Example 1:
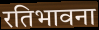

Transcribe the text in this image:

रतिभावना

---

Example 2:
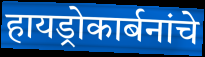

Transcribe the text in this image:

हायड्रोकार्बनांचे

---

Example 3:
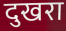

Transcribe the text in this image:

दुखरा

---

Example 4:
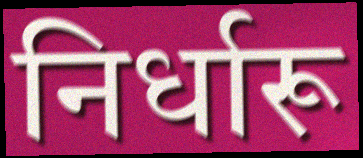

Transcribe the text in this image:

निर्धारू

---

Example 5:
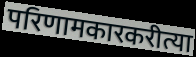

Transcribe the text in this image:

परिणामकारकरीत्या